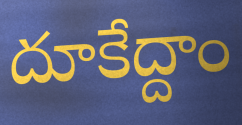
దూకేద్దాం